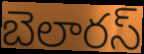
బెలారస్